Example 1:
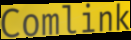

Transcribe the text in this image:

Comlink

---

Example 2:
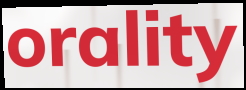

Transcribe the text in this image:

orality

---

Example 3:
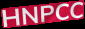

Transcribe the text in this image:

HNPCC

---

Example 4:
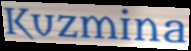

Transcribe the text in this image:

Kuzmina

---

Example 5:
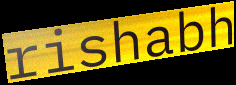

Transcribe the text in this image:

rishabh